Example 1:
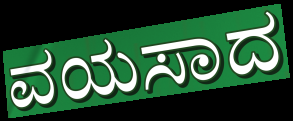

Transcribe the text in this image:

ವಯಸಾದ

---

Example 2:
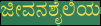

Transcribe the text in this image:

ಜೀವನಶೈಲಿಯ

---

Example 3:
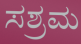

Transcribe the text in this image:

ಸಶ್ರಮ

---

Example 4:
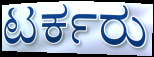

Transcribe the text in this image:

ಟರ್ಕರು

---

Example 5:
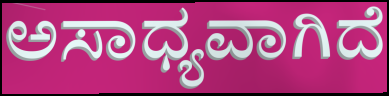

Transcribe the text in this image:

ಅಸಾಧ್ಯವಾಗಿದೆ